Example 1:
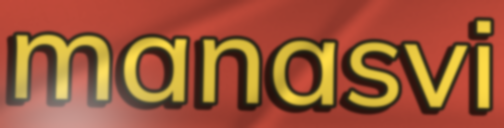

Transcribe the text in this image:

manasvi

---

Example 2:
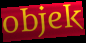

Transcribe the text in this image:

objek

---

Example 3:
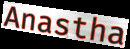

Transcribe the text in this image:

Anastha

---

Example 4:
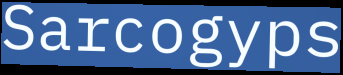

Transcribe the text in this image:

Sarcogyps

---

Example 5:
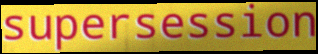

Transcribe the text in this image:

supersession